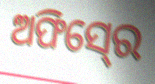
ଅଫିସ୍‍ରେ